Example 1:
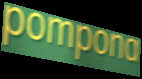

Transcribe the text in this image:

pompona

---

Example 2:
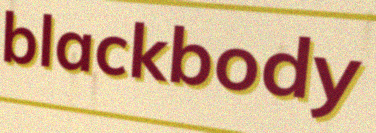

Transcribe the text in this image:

blackbody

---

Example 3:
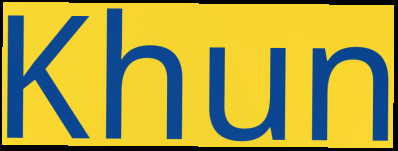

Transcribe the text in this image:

Khun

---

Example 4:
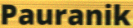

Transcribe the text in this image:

Pauranik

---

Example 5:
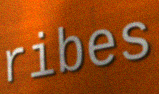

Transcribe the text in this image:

ribes